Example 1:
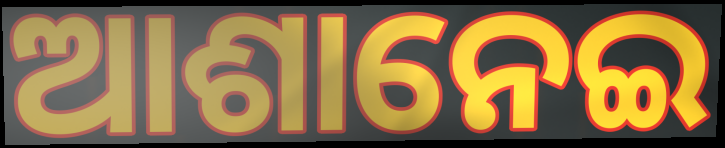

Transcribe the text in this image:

ଆଶାନେଇ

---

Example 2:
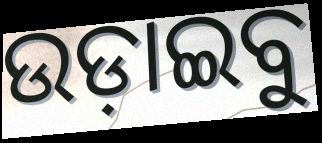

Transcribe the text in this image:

ଉଡ଼ାଇବୁ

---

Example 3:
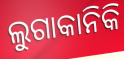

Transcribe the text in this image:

ଲୁଗାକାନିକି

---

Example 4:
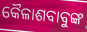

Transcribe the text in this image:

କୈଳାଶବାବୁଙ୍କ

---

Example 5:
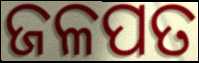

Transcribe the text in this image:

ଜଳପତ